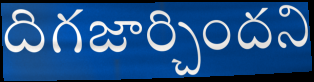
దిగజార్చిందని